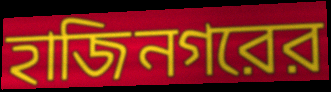
হাজিনগরের